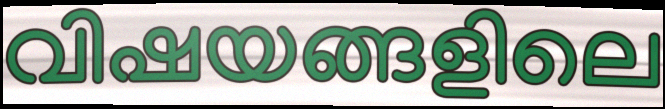
വിഷയങ്ങളിലെ